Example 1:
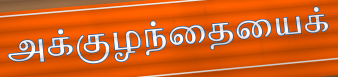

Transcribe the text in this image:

அக்குழந்தையைக்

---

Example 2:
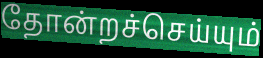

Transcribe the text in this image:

தோன்றச்செய்யும்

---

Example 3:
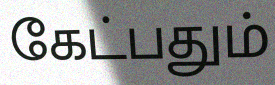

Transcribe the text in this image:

கேட்பதும்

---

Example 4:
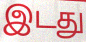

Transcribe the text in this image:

இடது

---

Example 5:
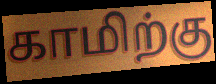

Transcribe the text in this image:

காமிற்கு